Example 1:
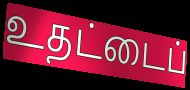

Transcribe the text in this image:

உதட்டைப்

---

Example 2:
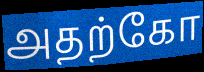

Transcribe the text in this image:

அதற்கோ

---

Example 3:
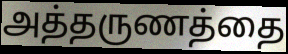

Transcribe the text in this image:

அத்தருணத்தை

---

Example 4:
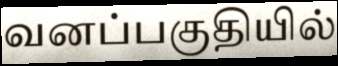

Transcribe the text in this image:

வனப்பகுதியில்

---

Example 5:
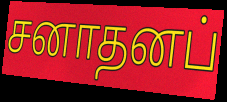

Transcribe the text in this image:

சனாதனப்